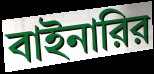
বাইনারির